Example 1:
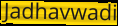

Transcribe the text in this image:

Jadhavwadi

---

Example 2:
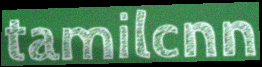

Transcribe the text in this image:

tamilcnn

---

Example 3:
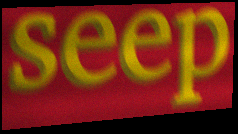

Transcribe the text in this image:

seep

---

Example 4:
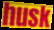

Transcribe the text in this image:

husk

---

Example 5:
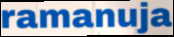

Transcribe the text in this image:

ramanuja